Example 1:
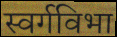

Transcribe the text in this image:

स्वर्गविभा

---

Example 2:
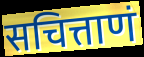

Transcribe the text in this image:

सचित्ताणं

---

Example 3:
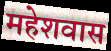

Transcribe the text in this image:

महेशवास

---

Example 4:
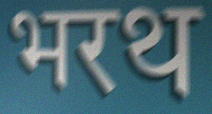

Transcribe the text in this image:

भरथ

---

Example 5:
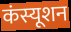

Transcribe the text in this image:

कंस्यूशन